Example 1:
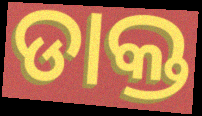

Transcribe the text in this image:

ଡାକ୍ତ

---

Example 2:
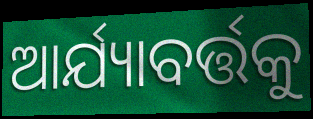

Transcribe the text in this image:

ଆର୍ଯ୍ୟାବର୍ତ୍ତକୁ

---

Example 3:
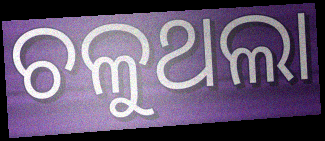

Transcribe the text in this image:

ଚଳୁଥଲା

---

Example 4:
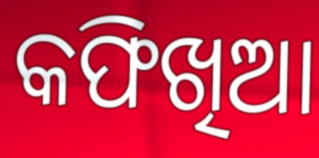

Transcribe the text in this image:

କଫିଖିଆ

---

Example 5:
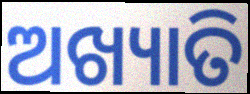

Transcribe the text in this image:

ଅଖ୍ୟାତି